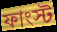
ফাংস্ট